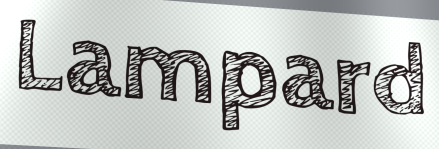
Lampard